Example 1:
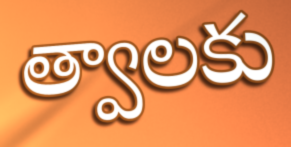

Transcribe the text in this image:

త్వాలకు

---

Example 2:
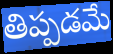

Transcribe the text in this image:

తిప్పడమే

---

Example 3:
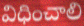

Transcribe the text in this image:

విధించాలి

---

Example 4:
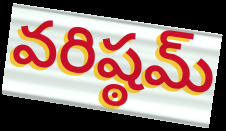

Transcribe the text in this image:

వరిష్ఠమ్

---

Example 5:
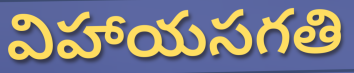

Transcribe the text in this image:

విహాయసగతి